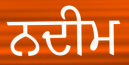
ਨਦੀਮ